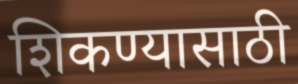
शिकण्यासाठी